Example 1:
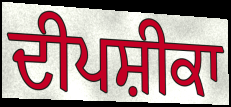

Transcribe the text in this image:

ਦੀਪਸ਼ੀਕਾ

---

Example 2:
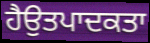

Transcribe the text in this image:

ਹੈਉਤਪਾਦਕਤਾ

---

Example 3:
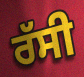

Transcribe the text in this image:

ਰੱਸੀ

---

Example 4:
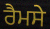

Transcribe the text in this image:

ਰੈਮਸੇ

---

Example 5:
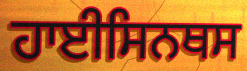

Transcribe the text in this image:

ਹਾਈਸਿਨਥਸ